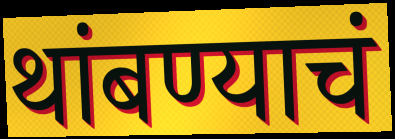
थांबण्याचं